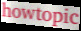
howtopic